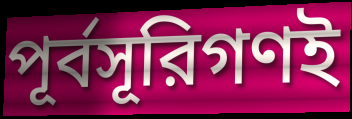
পূর্বসূরিগণই